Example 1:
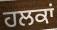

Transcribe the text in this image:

ਹਲਕਾਂ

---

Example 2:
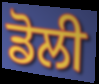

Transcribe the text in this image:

ਡੋਲੀ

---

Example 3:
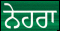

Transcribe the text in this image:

ਨੇਹਰਾ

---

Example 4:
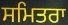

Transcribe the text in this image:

ਸਮਿਤਰਾ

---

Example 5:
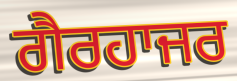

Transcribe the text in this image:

ਗੈਰਹਾਜਰ